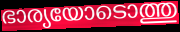
ഭാര്യയോടൊത്തു